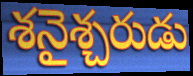
శనైశ్చరుడు